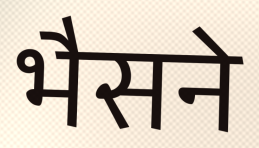
भैसने